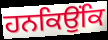
ਹਨਕਿਉਂਕਿ